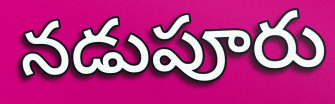
నడుపూరు